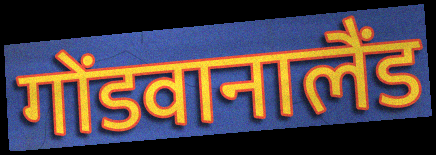
गोंडवानालैंड